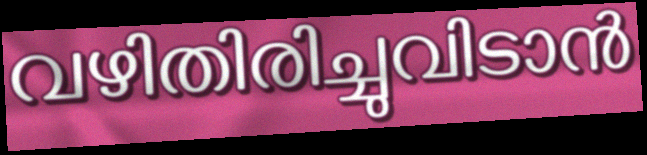
വഴിതിരിച്ചുവിടാൻ